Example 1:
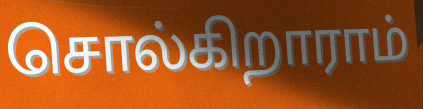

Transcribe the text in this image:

சொல்கிறாராம்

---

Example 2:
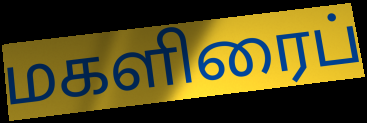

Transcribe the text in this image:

மகளிரைப்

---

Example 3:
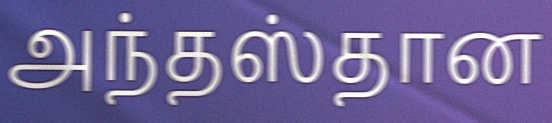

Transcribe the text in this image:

அந்தஸ்தான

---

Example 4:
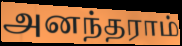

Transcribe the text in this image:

அனந்தராம்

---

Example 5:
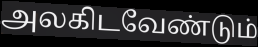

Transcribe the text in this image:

அலகிடவேண்டும்